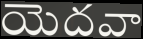
యెదవా